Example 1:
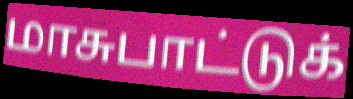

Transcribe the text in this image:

மாசுபாட்டுக்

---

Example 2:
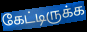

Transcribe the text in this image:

கேட்டிருக்க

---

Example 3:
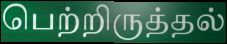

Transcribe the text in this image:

பெற்றிருத்தல்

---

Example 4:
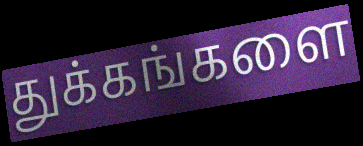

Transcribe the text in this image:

துக்கங்களை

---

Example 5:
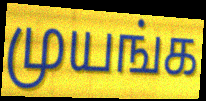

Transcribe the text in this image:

முயங்க